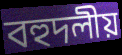
বহুদলীয়